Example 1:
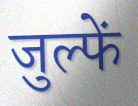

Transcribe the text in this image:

जुल्फें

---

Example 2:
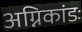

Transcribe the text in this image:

अग्निकांडः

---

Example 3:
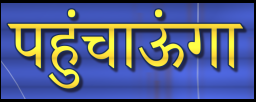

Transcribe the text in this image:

पहुंचाऊंगा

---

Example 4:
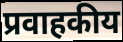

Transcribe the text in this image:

प्रवाहकीय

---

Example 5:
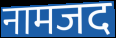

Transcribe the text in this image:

नामजद